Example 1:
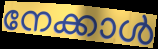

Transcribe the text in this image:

നേക്കാൾ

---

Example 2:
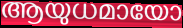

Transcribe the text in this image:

ആയുധമായോ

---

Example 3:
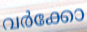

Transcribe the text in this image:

വർക്കോ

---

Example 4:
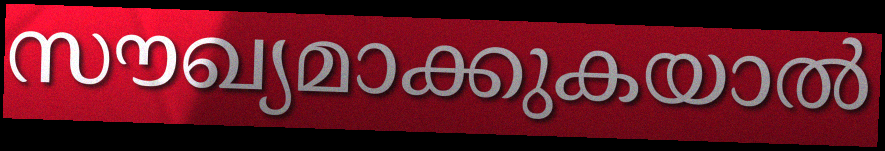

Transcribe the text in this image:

സൗഖ്യമാക്കുകയാൽ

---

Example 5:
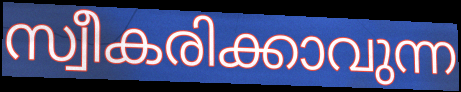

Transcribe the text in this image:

സ്വീകരിക്കാവുന്ന